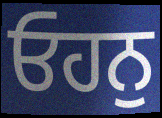
ਓਹਨੁ